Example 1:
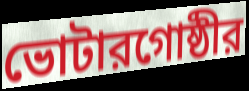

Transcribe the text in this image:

ভোটারগোষ্ঠীর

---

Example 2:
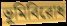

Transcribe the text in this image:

ভূমিবিরোধ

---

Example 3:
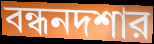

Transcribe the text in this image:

বন্ধনদশার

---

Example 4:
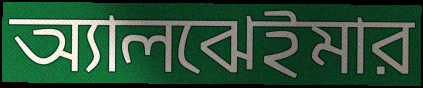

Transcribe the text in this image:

অ্যালঝেইমার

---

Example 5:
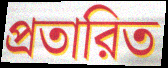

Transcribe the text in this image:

প্রতারিত